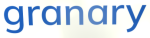
granary